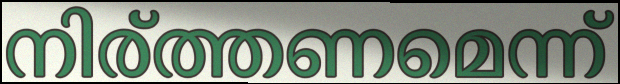
നിര്ത്തണമെന്ന്